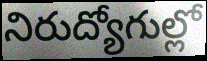
నిరుద్యోగుల్లో